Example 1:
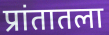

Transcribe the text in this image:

प्रांतातला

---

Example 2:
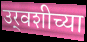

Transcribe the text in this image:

उर्वशीच्या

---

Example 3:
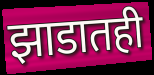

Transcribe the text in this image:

झाडातही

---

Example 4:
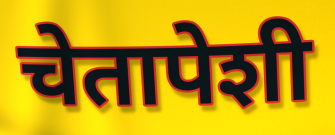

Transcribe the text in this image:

चेतापेशी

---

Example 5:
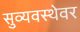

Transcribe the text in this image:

सुव्यवस्थेवर